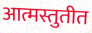
आत्मस्तुतीत